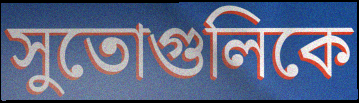
সুতোগুলিকে